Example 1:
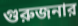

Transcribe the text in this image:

গুরুজনার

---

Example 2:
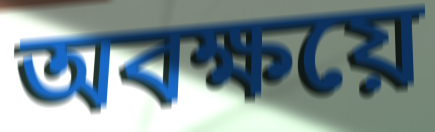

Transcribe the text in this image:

অবক্ষয়ে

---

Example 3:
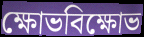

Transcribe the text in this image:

ক্ষোভবিক্ষোভ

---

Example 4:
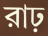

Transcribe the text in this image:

রাঢ়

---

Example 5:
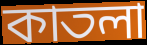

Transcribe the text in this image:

কাতলা